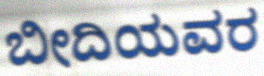
ಬೀದಿಯವರ